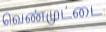
வெண்முட்டை